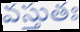
వస్తుతః